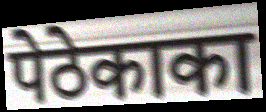
पेठेकाका